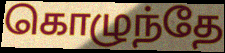
கொழுந்தே